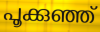
പൂക്കുഞ്ഞ്